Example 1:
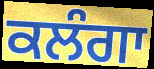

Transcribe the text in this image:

ਕਲੰਗਾ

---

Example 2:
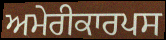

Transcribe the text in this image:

ਅਮੇਰੀਕਾਰਪਸ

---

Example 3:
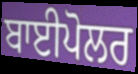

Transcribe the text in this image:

ਬਾਈਪੋਲਰ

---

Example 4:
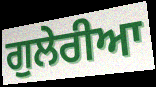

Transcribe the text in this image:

ਗੁਲੇਰੀਆ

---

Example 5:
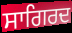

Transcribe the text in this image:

ਸਾਗਿਰਦ